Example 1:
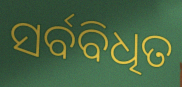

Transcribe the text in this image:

ସର୍ବବିଧିତ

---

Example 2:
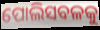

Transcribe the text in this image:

ପୋଲିସବଳକୁ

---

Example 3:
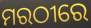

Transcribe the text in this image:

ମରଠୀରେ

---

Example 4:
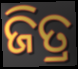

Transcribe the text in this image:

ଜିତ୍ର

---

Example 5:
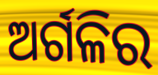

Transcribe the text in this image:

ଅର୍ଗଳିର